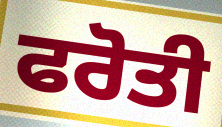
ਫਰੋਤੀ